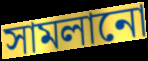
সামলানো